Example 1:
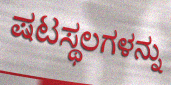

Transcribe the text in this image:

ಷಟಸ್ಥಲಗಳನ್ನು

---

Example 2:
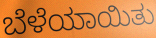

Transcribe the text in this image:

ಬೆಳೆಯಾಯಿತು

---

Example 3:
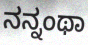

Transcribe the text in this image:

ನನ್ನಂಥಾ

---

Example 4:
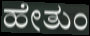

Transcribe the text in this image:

ಹೇತುಂ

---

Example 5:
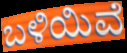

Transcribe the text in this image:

ಬಳಿಯಿವೆ